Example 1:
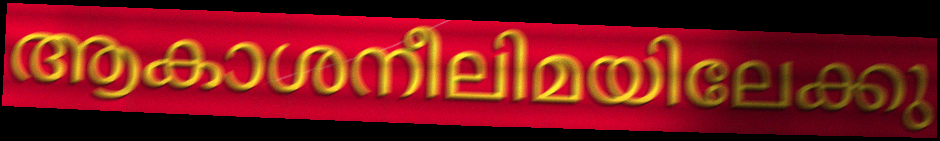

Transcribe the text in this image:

ആകാശനീലിമയിലേക്കു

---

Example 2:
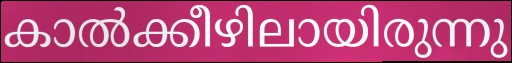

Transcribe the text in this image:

കാൽക്കീഴിലായിരുന്നു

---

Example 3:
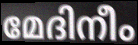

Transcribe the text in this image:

മേദിനീം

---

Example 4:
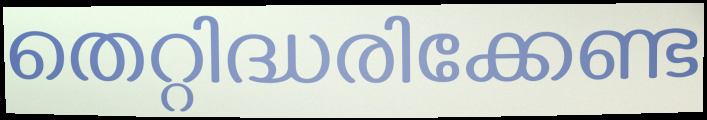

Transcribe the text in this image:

തെറ്റിദ്ധരിക്കേണ്ട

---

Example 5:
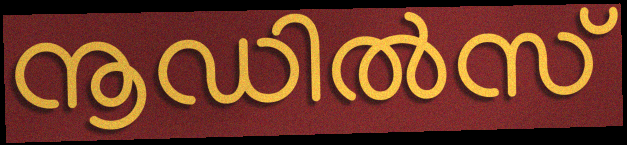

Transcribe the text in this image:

നൂഡിൽസ്